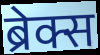
ब्रेक्स